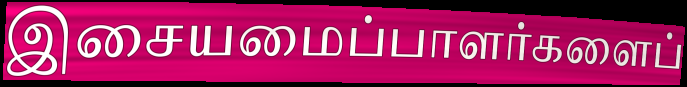
இசையமைப்பாளர்களைப்